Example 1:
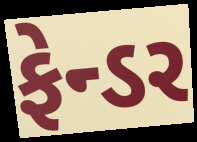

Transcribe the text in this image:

ફેન્ડર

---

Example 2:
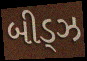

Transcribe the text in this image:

બીડ્ઝ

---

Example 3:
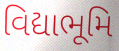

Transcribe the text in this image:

વિદ્યાભૂમિ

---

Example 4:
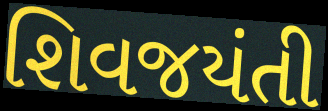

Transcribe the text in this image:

શિવજયંતી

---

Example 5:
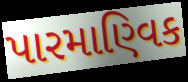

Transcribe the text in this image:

પારમાણ્વિક